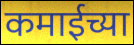
कमाईच्या